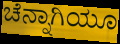
ಚೆನ್ನಾಗಿಯೂ